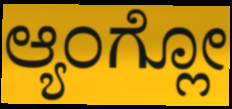
ಆ್ಯಂಗ್ಲೋ